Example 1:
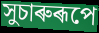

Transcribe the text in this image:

সুচাৰুৰূপে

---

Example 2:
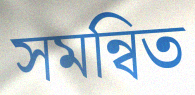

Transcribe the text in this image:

সমন্বিত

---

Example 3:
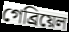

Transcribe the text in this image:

গেব্ৰিয়েল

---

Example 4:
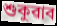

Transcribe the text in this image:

শুকুৱাব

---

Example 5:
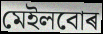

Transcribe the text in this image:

মেইলবোৰ